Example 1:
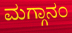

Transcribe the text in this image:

ಮಗ್ಗಾನಂ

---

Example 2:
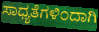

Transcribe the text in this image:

ಸಾಧ್ಯತೆಗಳಿಂದಾಗಿ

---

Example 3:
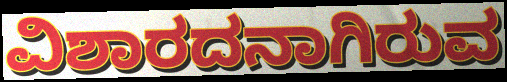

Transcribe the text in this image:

ವಿಶಾರದನಾಗಿರುವ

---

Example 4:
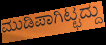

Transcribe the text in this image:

ಮುಡಿಪಾಗಿಟ್ಟದ್ದು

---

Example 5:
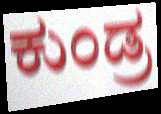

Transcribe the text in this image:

ಕುಂಡ್ರ